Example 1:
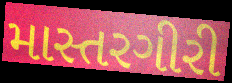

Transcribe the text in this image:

માસ્તરગીરી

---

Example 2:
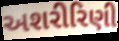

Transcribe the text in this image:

અશરીરિણી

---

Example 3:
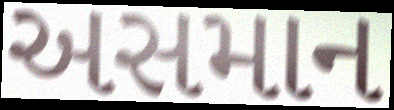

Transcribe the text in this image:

અસમાન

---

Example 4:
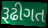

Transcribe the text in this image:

રૂઢીગત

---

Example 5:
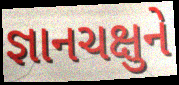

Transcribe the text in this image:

જ્ઞાનચક્ષુને